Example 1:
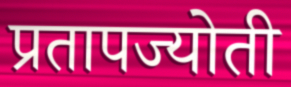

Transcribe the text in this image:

प्रतापज्योती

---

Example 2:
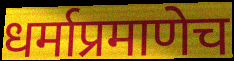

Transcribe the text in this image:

धर्माप्रमाणेच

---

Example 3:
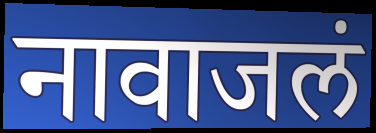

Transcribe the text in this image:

नावाजलं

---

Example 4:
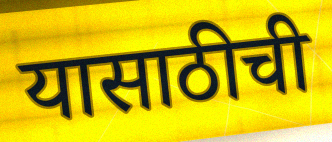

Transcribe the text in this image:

यासाठीची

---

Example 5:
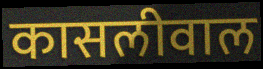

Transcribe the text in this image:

कासलीवाल